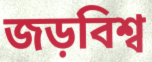
জড়বিশ্ব